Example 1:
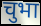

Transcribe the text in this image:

चुभा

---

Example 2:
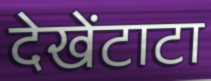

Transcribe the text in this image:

देखेंटाटा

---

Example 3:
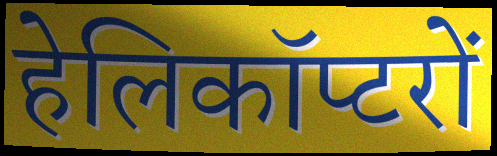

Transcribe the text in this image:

हेलिकॉप्टरों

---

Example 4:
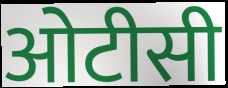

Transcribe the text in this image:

ओटीसी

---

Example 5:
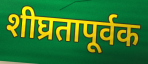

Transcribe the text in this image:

शीघ्रतापूर्वक